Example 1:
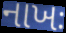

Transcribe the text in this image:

નાખઃ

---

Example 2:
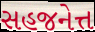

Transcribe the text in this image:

સહજનેત્ત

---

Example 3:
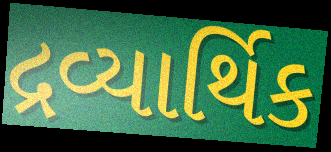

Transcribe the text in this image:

દ્રવ્યાર્થિક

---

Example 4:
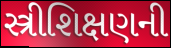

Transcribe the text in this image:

સ્ત્રીશિક્ષણની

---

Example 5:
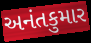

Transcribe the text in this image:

અનંતકુમાર